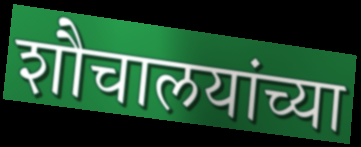
शौचालयांच्या